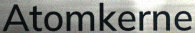
Atomkerne